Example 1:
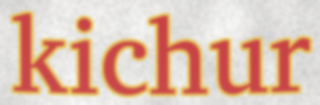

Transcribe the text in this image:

kichur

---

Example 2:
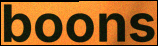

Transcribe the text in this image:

boons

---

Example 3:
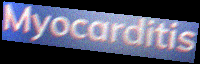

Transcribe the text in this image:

Myocarditis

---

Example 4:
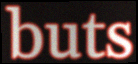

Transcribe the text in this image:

buts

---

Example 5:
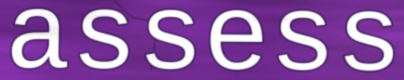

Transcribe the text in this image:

assess